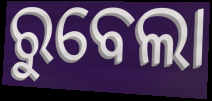
ରୁବେଲା